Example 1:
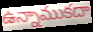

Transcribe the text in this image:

ఉన్నాముకదా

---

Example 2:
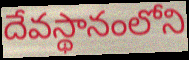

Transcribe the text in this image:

దేవస్థానంలోని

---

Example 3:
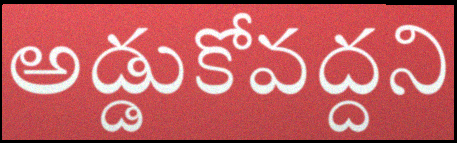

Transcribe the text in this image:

అడ్డుకోవద్దని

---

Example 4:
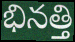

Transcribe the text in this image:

భినత్తి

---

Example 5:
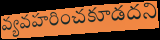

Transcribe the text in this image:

వ్యవహరించకూడదని